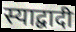
स्याद्वादी